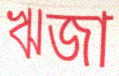
ঋজা